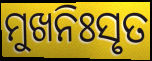
ମୁଖନିଃସୃତ